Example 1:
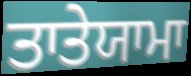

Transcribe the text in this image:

ਤਾਤੇਯਾਮਾ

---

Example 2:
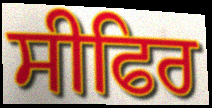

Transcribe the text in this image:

ਸੀਫਿਰ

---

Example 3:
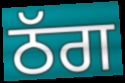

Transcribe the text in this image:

ਠੱਗ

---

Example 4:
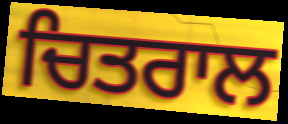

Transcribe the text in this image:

ਚਿਤਰਾਲ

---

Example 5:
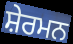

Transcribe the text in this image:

ਸ਼ੇਰਮਨ